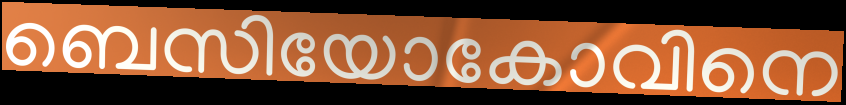
ബെസിയോകോവിനെ